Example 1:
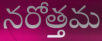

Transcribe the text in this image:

నరోత్తమ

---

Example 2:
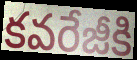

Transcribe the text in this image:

కవరేజీకి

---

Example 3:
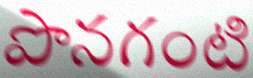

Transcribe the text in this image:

పొనగంటి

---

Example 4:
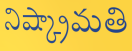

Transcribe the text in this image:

నిష్క్రామతి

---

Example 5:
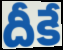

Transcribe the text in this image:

దీకే